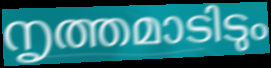
നൃത്തമാടിടും